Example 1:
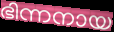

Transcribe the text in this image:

ഭിന്നനായ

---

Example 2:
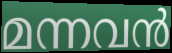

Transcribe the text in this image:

മന്നവൻ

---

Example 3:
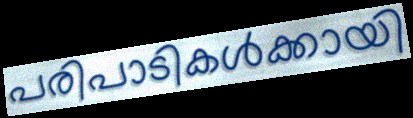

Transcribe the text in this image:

പരിപാടികൾക്കായി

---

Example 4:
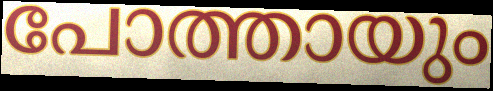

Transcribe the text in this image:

പോത്തായും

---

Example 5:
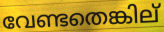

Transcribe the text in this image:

വേണ്ടതെങ്കില്